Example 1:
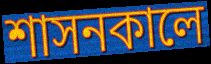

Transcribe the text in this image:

শাসনকালে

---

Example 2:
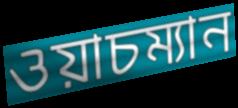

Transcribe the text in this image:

ওয়াচম্যান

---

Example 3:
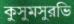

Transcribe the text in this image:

কুসুমসুরভি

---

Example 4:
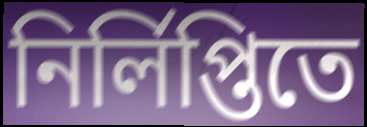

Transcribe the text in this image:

নির্লিপ্তিতে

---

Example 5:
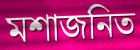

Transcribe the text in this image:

মশাজনিত